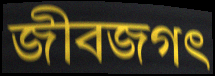
জীবজগৎ